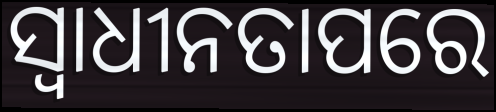
ସ୍ୱାଧୀନତାପରେ